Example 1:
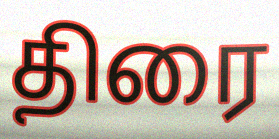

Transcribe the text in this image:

திரை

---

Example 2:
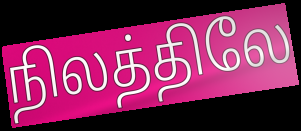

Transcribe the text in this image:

நிலத்திலே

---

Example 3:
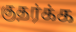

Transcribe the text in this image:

குதர்க்க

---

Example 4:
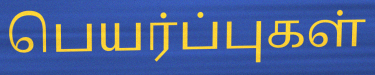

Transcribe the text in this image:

பெயர்ப்புகள்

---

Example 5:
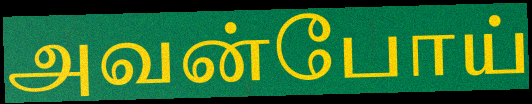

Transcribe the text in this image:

அவன்போய்